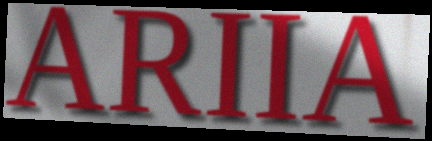
ARIIA